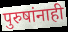
पुरुषांनाही